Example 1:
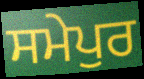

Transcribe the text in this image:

ਸਮੇਪੁਰ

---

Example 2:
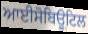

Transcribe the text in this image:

ਆਈਸੋਬਿਊਟਿਲ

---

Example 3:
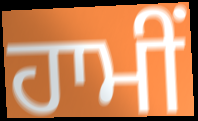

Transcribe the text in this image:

ਹਾਮੀਂ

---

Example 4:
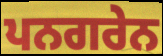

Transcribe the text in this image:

ਪਨਗਰੇਨ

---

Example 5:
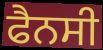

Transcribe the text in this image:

ਫੈਨਸੀ